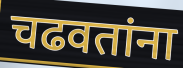
चढवतांना